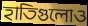
হাতিগুলোও